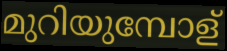
മുറിയുമ്പോള്